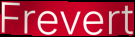
Frevert